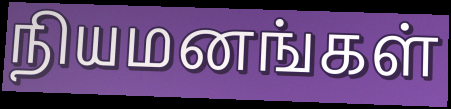
நியமனங்கள்